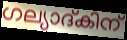
ഗല്യാദ്കിന്